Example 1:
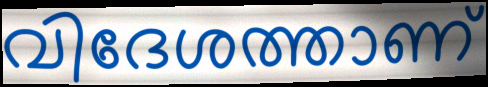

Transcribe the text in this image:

വിദേശത്താണ്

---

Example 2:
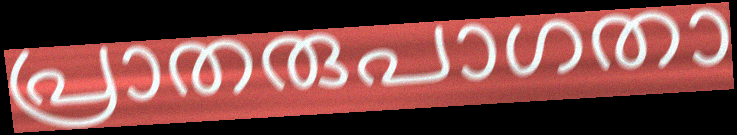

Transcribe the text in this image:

പ്രാതരുപാഗതാ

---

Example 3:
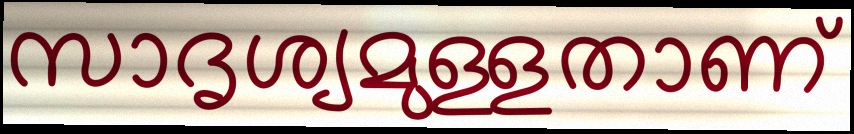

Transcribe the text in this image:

സാദൃശ്യമുള്ളതാണ്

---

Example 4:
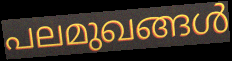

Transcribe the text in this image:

പലമുഖങ്ങൾ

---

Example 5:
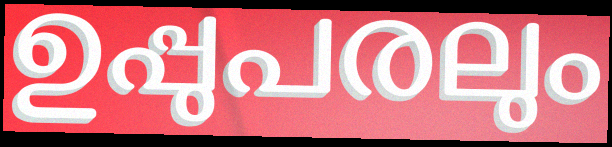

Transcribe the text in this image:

ഉപ്പുപരലും